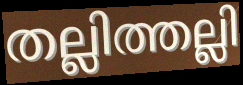
തല്ലിത്തല്ലി